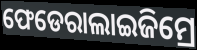
ଫେଡେରାଲାଇଜିମ୍ରେ